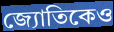
জ্যোতিকেও